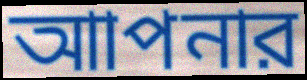
আাপনার